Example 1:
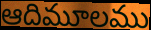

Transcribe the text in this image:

ఆదిమూలము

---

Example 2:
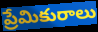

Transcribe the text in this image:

ప్రేమికురాలు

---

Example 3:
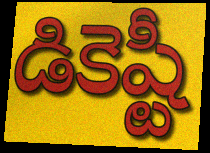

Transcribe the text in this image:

డికెష్టీ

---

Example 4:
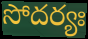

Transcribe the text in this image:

సోదర్యః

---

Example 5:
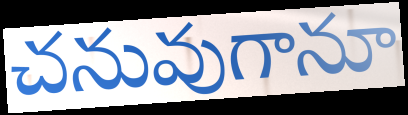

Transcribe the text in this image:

చనువుగానూ